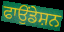
ਫਾਉਂਡੇਸ਼ਨ